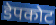
डेपकोट